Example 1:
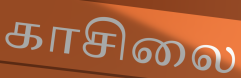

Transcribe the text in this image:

காசிலை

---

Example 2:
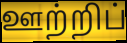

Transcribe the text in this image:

ஊற்றிப்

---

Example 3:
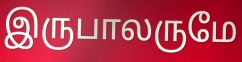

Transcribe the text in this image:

இருபாலருமே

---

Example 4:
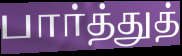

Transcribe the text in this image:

பார்த்துத்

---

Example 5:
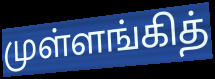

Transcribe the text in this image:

முள்ளங்கித்